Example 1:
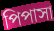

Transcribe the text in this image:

পিপাসা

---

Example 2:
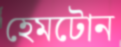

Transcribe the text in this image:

হেমটোন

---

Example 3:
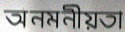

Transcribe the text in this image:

অনমনীয়তা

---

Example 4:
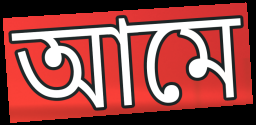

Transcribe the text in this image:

আমে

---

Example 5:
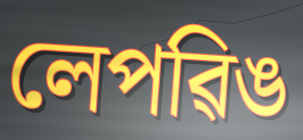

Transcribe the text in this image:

লেপৱিঙ